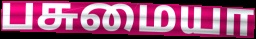
பசுமையா